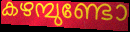
കഴമ്പുണ്ടോ